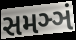
સમઞ્ઞં